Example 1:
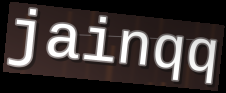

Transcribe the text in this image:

jainqq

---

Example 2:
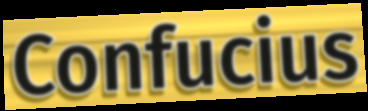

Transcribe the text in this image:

Confucius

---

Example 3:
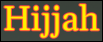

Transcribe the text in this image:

Hijjah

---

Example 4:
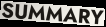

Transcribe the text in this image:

SUMMARY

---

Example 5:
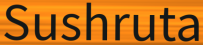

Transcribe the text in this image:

Sushruta